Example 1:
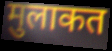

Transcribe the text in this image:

मुलाकत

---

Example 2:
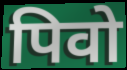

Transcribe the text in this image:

पिवो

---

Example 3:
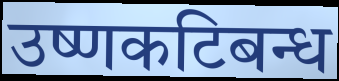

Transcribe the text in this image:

उष्णकटिबन्ध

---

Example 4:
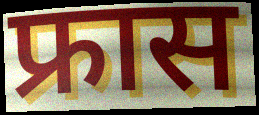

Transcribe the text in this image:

फ्रास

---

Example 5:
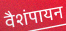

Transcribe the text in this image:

वैशंपायन